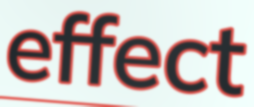
effect